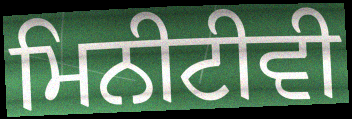
ਮਿਨੀਟੀਵੀ